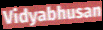
Vidyabhusan